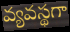
వ్యవస్థగా